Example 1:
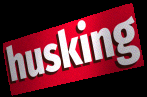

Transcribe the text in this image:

husking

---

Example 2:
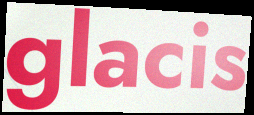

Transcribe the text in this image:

glacis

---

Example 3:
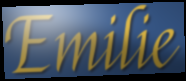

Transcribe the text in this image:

Emilie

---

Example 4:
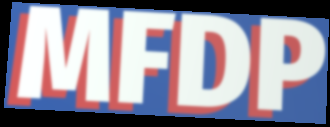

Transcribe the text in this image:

MFDP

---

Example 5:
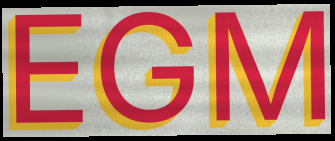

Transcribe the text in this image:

EGM